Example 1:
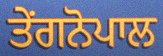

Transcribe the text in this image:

ਤੇਂਗਨੋਪਾਲ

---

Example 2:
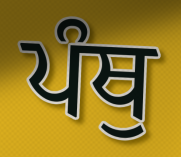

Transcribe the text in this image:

ਪੰਥੁ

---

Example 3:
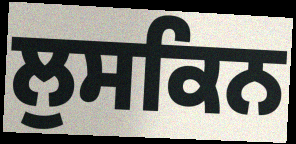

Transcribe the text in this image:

ਲੁਸਕਿਨ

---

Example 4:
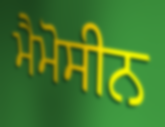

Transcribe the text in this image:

ਮੈਮੋਸੀਨ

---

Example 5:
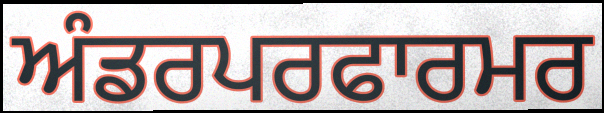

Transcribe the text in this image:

ਅੰਡਰਪਰਫਾਰਮਰ